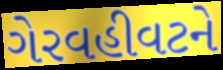
ગેરવહીવટને